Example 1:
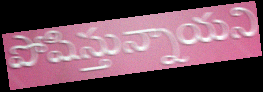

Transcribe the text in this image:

పోషిస్తున్నాయని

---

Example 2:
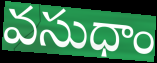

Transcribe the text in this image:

వసుధాం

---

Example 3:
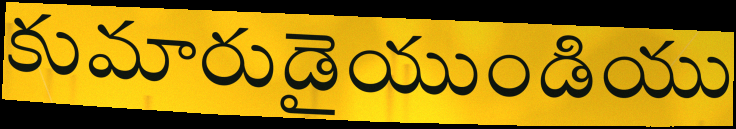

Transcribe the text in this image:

కుమారుడైయుండియు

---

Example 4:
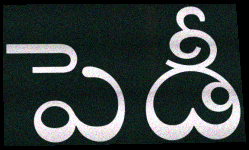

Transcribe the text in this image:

పెడీ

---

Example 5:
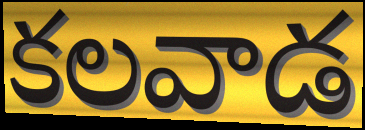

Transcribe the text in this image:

కలవాడ